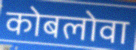
कोबलोवा